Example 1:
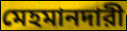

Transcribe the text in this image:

মেহমানদারী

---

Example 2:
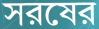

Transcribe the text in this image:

সরষের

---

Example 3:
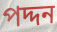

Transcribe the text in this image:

পদ্দন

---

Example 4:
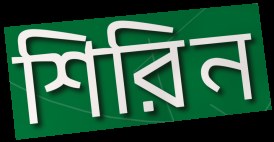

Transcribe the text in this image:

শিরিন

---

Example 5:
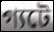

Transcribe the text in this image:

গ্যটে